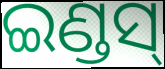
ଇଣ୍ଡସ୍